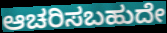
ಆಚರಿಸಬಹುದೇ